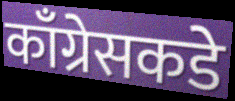
काँग्रेसकडे